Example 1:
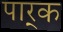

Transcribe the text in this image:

पार्क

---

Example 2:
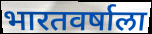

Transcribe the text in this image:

भारतवर्षाला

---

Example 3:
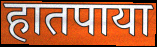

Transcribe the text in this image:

हातपाया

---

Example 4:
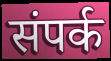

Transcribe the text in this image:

संपर्क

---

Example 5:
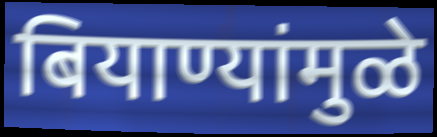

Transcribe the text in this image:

बियाण्यांमुळे